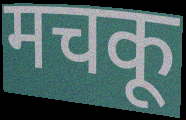
मचकू